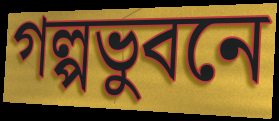
গল্পভুবনে